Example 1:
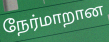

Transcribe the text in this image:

நேர்மாறான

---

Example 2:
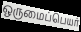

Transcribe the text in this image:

ஒருமைப்பெயர்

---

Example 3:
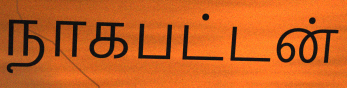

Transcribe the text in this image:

நாகபட்டன்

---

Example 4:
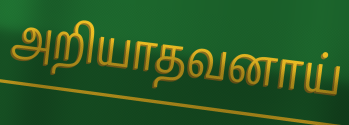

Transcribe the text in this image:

அறியாதவனாய்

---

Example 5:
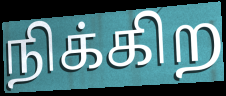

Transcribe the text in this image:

நிக்கிற